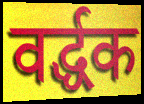
वर्द्धक